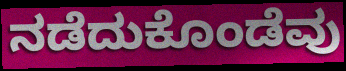
ನಡೆದುಕೊಂಡೆವು